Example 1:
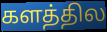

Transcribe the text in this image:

களத்தில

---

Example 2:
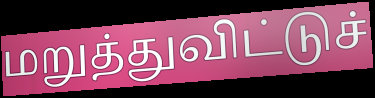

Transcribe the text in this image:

மறுத்துவிட்டுச்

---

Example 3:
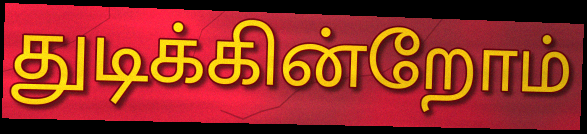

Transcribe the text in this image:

துடிக்கின்றோம்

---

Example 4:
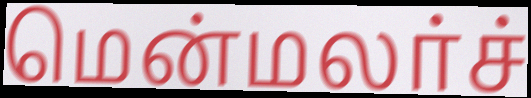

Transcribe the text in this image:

மென்மலர்ச்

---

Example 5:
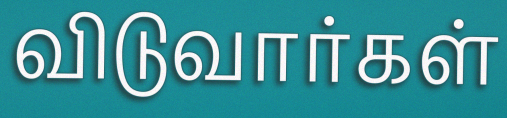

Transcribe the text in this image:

விடுவார்கள்